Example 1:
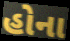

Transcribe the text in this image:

હોના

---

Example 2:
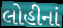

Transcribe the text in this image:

લોહીનાં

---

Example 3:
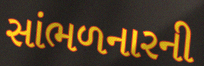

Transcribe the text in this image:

સાંભળનારની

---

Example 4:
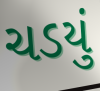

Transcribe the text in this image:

ચડયું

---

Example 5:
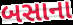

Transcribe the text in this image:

બસાના